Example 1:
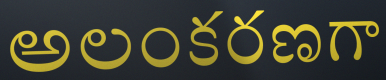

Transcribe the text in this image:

అలంకరణగా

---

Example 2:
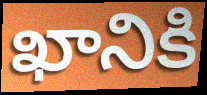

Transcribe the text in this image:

ఖానికి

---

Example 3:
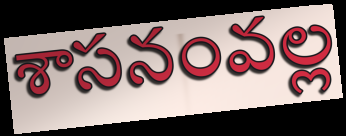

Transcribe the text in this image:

శాసనంవల్ల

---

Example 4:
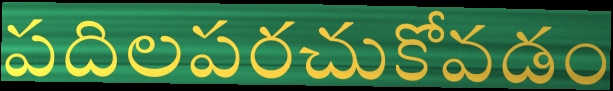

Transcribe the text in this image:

పదిలపరచుకోవడం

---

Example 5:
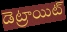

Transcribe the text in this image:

డెట్రాయిట్